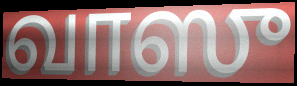
வாஸு